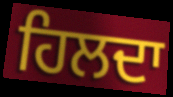
ਹਿਲਦਾ